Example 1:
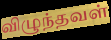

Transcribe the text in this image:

விழுந்தவள்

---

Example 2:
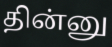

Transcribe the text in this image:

தின்னு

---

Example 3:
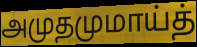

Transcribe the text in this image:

அமுதமுமாய்த்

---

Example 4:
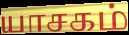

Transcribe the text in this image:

யாசகம்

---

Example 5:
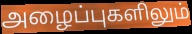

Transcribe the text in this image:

அழைப்புகளிலும்